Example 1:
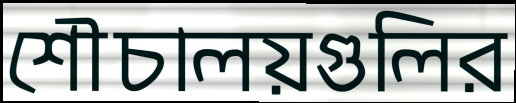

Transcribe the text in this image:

শৌচালয়গুলির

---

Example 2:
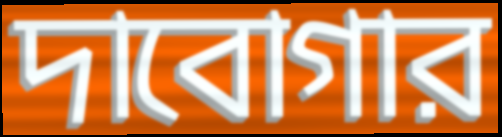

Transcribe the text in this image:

দাবোগার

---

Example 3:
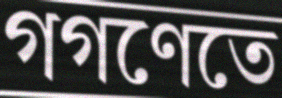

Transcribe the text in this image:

গগণেতে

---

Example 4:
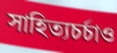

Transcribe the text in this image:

সাহিত্যচর্চাও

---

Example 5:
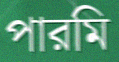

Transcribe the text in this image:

পারমি